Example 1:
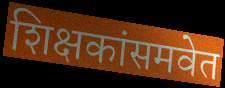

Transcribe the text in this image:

शिक्षकांसमवेत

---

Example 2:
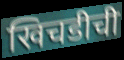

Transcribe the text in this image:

खिचडीची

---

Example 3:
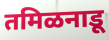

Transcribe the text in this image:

तमिळनाडू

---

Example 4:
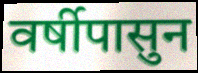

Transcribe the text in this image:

वर्षीपासुन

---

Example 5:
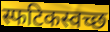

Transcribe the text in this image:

स्फटिकस्वच्छ